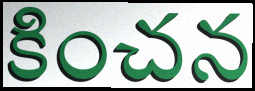
కించన